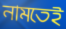
নামতেই